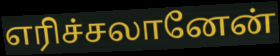
எரிச்சலானேன்